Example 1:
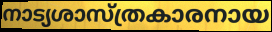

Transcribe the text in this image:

നാട്യശാസ്ത്രകാരനായ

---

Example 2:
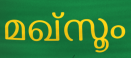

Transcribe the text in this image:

മഖ്സൂം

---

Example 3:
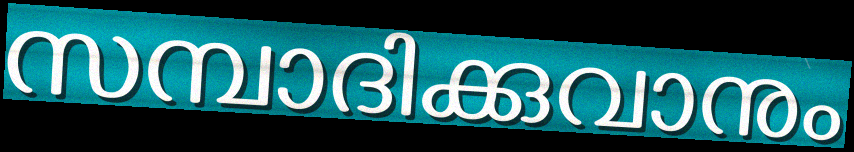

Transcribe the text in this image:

സമ്പാദിക്കുവാനും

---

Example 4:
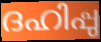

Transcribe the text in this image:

ദഹിപ്പു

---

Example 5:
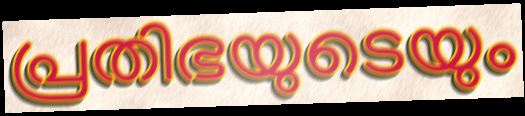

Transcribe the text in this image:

പ്രതിഭയുടെയും